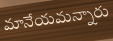
మానేయమన్నారు